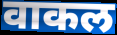
वाकल